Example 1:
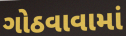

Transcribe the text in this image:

ગોઠવાવામાં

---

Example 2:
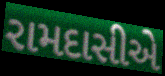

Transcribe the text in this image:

રામદાસીએ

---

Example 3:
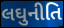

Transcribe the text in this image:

લઘુનીતિ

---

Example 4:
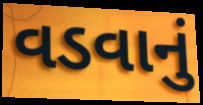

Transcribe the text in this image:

વડવાનું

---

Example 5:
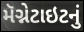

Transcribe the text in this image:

મૅગ્નેટાઇટનું